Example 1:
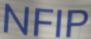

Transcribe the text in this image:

NFIP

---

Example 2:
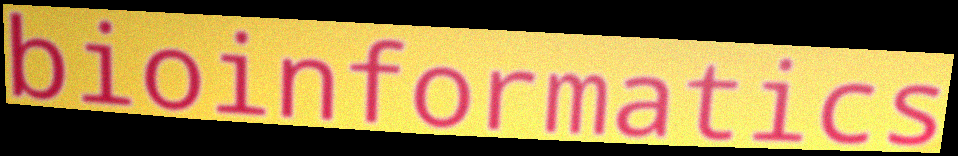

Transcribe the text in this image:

bioinformatics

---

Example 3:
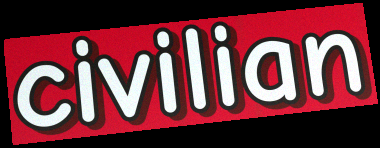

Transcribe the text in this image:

civilian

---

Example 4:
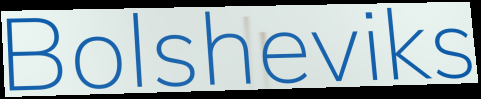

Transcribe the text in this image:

Bolsheviks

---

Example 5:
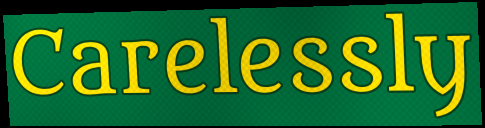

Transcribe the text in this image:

Carelessly